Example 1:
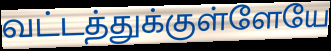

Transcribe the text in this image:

வட்டத்துக்குள்ளேயே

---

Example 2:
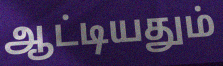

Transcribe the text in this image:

ஆட்டியதும்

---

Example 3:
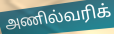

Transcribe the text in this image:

அணில்வரிக்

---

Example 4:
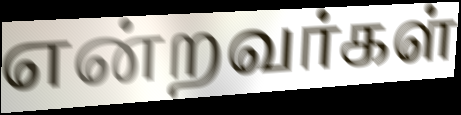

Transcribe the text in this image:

என்றவர்கள்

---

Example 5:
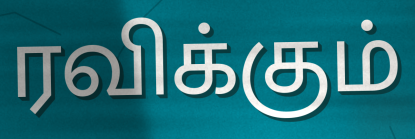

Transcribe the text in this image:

ரவிக்கும்